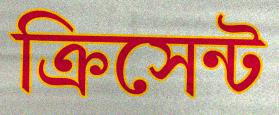
ক্রিসেন্ট